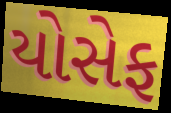
યોસેફ